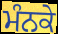
ਮੰਨਕੇ